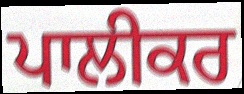
ਪਾਲੀਕਰ